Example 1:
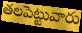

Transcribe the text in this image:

తలపెట్టువారు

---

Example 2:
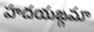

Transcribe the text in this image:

హదయఙ్గమా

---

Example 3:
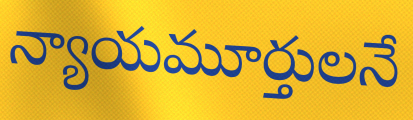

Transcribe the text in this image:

న్యాయమూర్తులనే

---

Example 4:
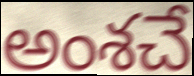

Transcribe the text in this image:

అంశచే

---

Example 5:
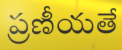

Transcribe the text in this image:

ప్రణీయతే